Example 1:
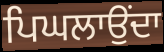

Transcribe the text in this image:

ਪਿਘਲਾਉਂਦਾ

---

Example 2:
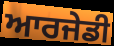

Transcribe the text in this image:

ਆਰਜੇਡੀ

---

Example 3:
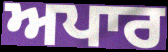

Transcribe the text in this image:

ਅਪਾਰ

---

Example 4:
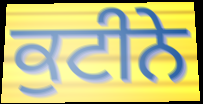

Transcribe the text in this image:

ਕੁਟੀਨੇ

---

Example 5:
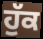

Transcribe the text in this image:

ਹੁੱਕ